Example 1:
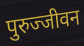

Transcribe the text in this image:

पुरुज्जीवन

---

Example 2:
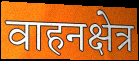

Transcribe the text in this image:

वाहनक्षेत्र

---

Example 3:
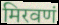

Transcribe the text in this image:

मिरवणं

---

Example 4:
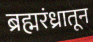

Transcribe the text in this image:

ब्रह्मरंध्रातून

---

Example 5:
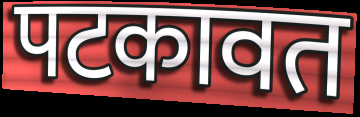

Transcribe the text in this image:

पटकावत